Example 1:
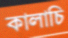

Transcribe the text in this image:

কালাচি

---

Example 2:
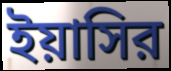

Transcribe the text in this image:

ইয়াসির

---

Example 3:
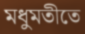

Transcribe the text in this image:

মধুমতীতে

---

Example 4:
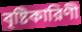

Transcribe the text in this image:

বৃষ্টিকারিণী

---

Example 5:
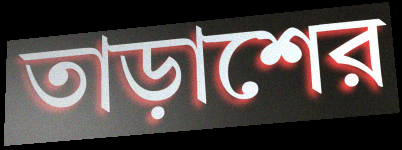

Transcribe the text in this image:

তাড়াশের